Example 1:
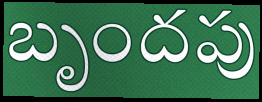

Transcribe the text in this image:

బృందపు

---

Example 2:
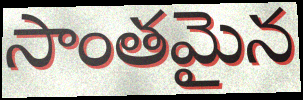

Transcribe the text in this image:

సాంతమైన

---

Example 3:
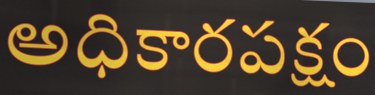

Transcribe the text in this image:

అధికారపక్షం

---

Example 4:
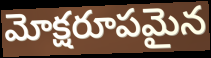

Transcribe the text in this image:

మోక్షరూపమైన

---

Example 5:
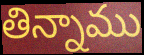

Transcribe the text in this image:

తిన్నాము